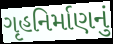
ગૃહનિર્માણનું